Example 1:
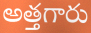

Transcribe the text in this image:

అత్తగారు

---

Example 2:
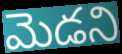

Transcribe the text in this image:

మెడని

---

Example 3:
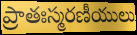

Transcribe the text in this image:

ప్రాతఃస్మరణీయులు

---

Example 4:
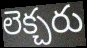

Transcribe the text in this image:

లెక్చరు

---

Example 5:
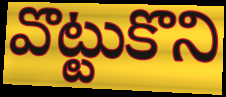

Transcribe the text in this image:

వొట్టుకొని